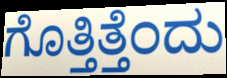
ಗೊತ್ತಿತ್ತೆಂದು